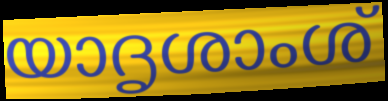
യാദൃശാംശ്